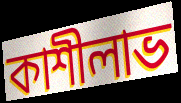
কাশীলাভ